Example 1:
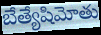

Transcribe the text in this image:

బేత్యేషిమోతు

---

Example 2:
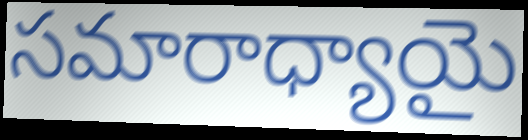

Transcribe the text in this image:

సమారాధ్యాయై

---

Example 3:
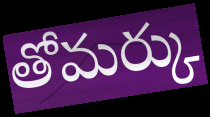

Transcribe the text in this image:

తోమర్కు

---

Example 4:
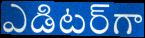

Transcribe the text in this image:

ఎడిటర్‌గా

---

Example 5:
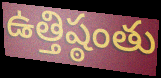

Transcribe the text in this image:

ఉత్తిష్ఠంతు